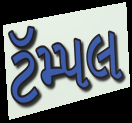
ટૅમ્પલ